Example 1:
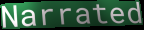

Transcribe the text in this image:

Narrated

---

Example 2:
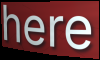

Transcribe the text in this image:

here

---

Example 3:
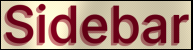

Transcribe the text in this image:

Sidebar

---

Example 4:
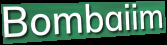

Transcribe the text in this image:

Bombaiim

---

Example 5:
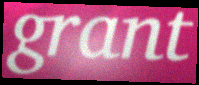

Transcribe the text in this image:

grant